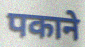
पकाने